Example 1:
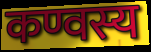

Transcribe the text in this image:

कण्वस्य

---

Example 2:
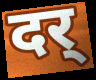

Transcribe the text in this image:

दर्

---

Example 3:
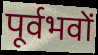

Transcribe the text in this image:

पूर्वभवों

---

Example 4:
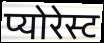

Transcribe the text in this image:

प्योरेस्ट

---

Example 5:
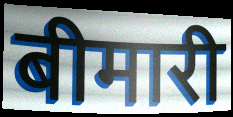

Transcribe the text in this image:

बीमारी